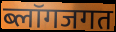
ब्लॉगजगत